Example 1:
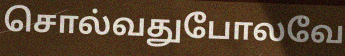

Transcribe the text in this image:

சொல்வதுபோலவே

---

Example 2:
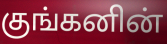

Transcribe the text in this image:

குங்கனின்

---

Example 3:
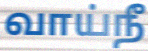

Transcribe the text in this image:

வாய்நீ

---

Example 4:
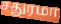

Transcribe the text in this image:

சதுரமா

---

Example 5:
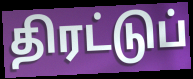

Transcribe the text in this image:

திரட்டுப்